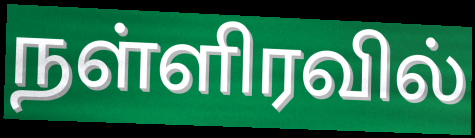
நள்ளிரவில்